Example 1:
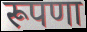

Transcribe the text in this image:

रूपणा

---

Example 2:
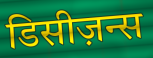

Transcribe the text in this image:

डिसीज़न्स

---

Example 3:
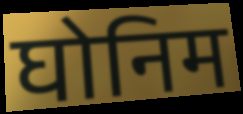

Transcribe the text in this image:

घोनिम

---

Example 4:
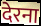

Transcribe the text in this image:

देरना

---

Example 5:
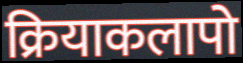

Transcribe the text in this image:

क्रियाकलापो